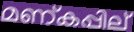
മണ്കപ്പില്